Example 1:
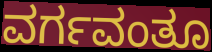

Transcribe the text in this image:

ವರ್ಗವಂತೂ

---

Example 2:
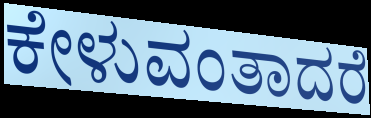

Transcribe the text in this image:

ಕೇಳುವಂತಾದರೆ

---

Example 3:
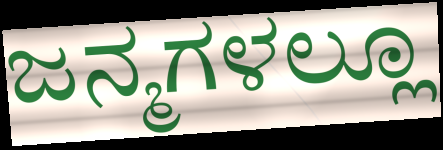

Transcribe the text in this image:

ಜನ್ಮಗಳಲ್ಲೂ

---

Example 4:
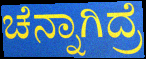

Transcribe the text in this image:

ಚೆನ್ನಾಗಿದ್ರೆ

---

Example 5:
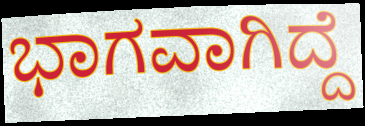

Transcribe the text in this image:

ಭಾಗವಾಗಿದ್ದೆ